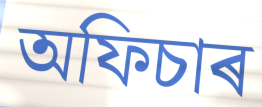
অফিচাৰ